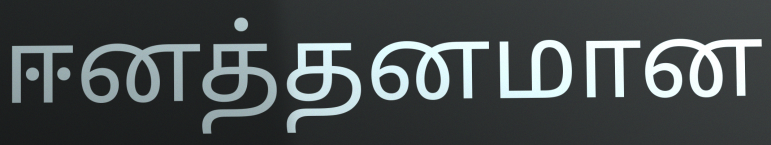
ஈனத்தனமான